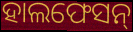
ହାଲଫେସନ୍